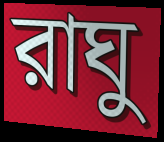
রাঘু